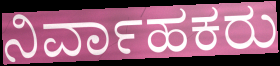
ನಿರ್ವಾಹಕರು